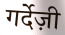
गर्देज़ी